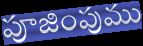
పూజింపుము